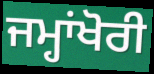
ਜਮ੍ਹਾਂਖੋਰੀ